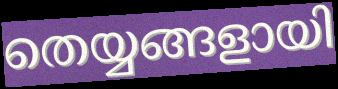
തെയ്യങ്ങളായി